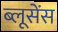
ब्लूसेंस